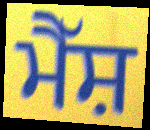
ਮੈੱਸ਼